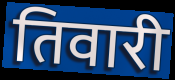
तिवारी